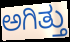
ಅಗಿತ್ತು